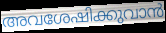
അവശേഷിക്കുവാൻ